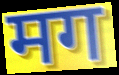
मग